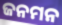
ଜନମନ